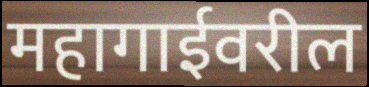
महागाईवरील